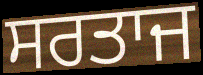
ਸਰਤਾਜ